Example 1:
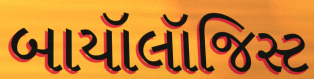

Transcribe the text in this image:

બાયૉલૉજિસ્ટ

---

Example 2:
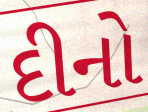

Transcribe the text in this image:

દીનો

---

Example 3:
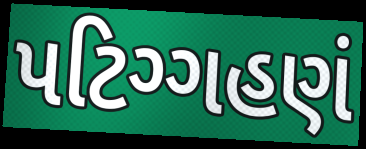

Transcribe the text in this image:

પટિગ્ગહણં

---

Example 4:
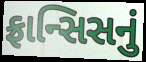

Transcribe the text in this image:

ફ્રાન્સિસનું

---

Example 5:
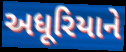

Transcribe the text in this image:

અધૂરિયાને